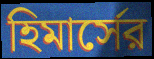
হিমার্সের